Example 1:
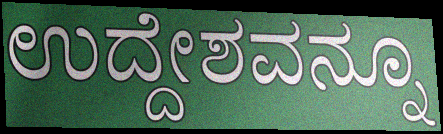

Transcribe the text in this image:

ಉದ್ದೇಶವನ್ನೂ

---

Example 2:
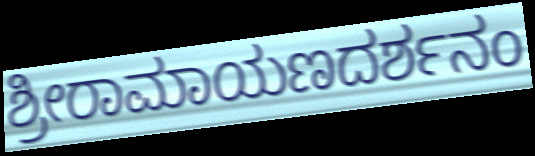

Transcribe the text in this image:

ಶ್ರೀರಾಮಾಯಣದರ್ಶನಂ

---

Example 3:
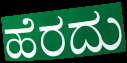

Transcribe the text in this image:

ಹೆರದು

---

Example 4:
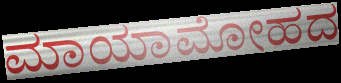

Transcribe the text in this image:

ಮಾಯಾಮೋಹದ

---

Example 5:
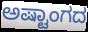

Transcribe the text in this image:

ಅಷ್ಟಾಂಗದ